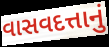
વાસવદત્તાનું